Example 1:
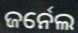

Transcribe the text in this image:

ଜର୍ନେଲ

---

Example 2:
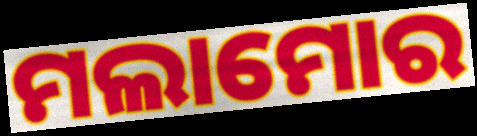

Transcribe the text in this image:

ମଲାମୋର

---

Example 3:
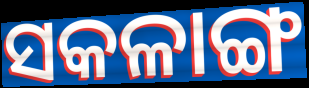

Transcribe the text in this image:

ସକଳାଙ୍ଗ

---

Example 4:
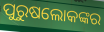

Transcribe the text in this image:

ପୁରୁଷଲୋକଙ୍କର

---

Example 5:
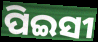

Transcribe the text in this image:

ପିଇସୀ